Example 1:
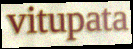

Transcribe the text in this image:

vitupata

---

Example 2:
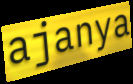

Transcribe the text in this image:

ajanya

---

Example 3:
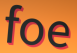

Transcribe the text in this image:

foe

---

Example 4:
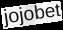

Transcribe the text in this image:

jojobet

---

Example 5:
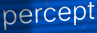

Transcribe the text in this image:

percept